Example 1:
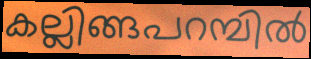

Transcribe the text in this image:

കല്ലിങ്ങപറമ്പിൽ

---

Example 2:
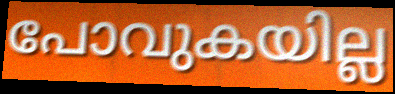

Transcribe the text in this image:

പോവുകയില്ല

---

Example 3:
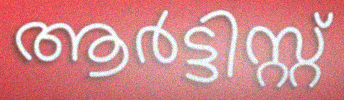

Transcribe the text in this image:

ആർട്ടിസ്റ്റ്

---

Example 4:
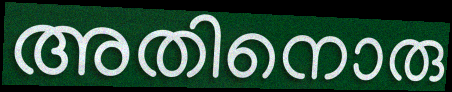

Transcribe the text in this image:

അതിനൊരു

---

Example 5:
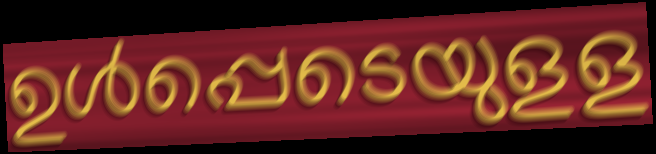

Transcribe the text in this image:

ഉൾപ്പെടെയുളള